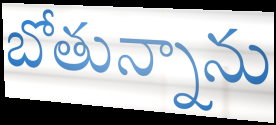
బోతున్నాను